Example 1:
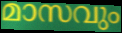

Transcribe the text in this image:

മാസവും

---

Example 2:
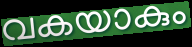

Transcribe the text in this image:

വകയാകും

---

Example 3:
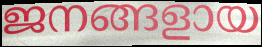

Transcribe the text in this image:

ജനങ്ങളായ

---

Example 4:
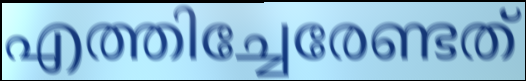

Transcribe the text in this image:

എത്തിച്ചേരേണ്ടത്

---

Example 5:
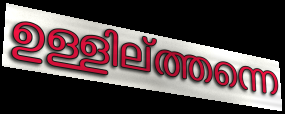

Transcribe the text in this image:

ഉള്ളില്ത്തന്നെ